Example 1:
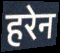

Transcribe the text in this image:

हरेन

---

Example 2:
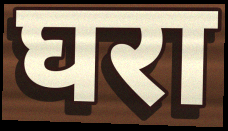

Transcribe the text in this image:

घरा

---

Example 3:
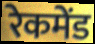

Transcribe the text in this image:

रेकमेंड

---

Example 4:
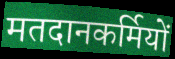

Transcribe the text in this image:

मतदानकर्मियों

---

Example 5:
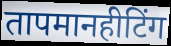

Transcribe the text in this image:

तापमानहीटिंग